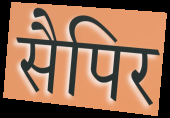
सैपिर